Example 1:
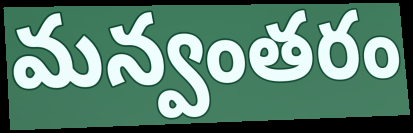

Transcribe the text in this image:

మన్వంతరం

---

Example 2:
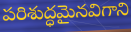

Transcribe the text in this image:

పరిశుద్ధమైనవిగాని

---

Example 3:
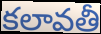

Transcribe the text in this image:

కలావతీ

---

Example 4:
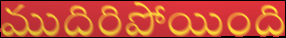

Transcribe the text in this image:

ముదిరిపోయింది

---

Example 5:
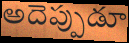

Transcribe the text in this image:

అదెప్పుడూ